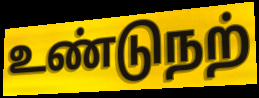
உண்டுநற்